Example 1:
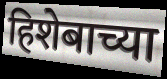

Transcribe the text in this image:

हिशेबाच्या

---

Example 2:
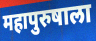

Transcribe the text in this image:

महापुरुषाला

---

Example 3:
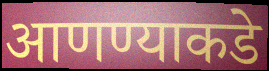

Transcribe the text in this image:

आणण्याकडे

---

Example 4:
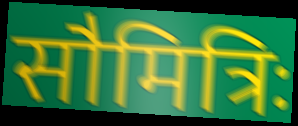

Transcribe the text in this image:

सौमित्रिः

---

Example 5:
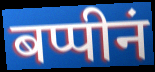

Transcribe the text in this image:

बप्पीनं